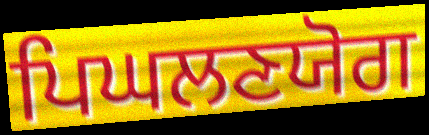
ਪਿਘਲਣਯੋਗ